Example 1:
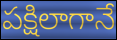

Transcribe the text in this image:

పక్షిలాగానే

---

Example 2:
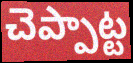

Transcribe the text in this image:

చెప్పాట్ట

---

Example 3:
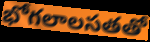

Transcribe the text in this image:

భోగలాలసతతో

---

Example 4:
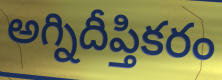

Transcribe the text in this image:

అగ్నిదీప్తికరం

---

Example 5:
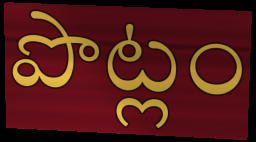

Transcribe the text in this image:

పొట్లం